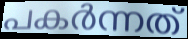
പകർന്നത്